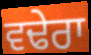
ਵਢੇਰਾ